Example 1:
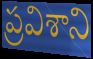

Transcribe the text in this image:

ప్రవిశాని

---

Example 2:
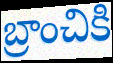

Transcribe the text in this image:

బ్రాంచికి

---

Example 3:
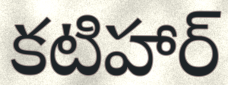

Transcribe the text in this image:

కటిహార్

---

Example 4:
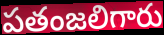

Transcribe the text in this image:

పతంజలిగారు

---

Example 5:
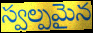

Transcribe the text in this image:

స్వల్పమైన